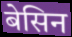
बेसिन